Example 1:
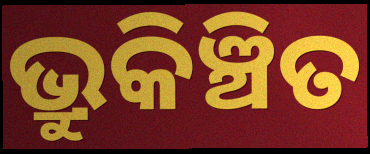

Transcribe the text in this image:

ଭ୍ରୁକିଞ୍ଚିତ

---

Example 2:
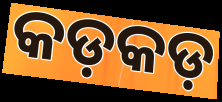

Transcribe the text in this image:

କଡ଼କଡ଼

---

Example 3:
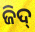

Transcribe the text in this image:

ଜିଦ୍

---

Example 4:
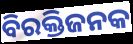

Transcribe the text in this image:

ବିରକ୍ତିଜନକ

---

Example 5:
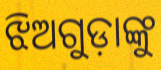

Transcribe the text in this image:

ଝିଅଗୁଡ଼ାଙ୍କୁ